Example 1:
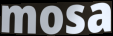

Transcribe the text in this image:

mosa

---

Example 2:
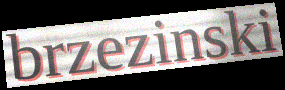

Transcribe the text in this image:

brzezinski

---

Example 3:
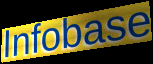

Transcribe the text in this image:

Infobase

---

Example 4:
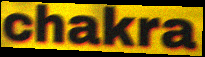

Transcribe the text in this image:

chakra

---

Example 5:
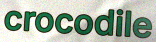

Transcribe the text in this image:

crocodile